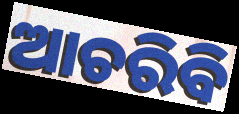
ଆଚରିବି